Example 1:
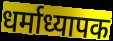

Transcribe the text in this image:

धर्माध्यापक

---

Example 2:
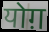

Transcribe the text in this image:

योग़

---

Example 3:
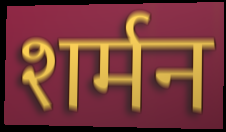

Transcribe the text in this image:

शर्मन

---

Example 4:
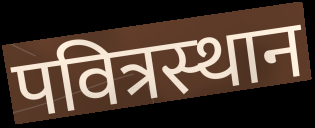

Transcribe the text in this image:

पवित्रस्‍थान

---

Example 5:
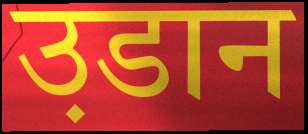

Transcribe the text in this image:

उ़डान